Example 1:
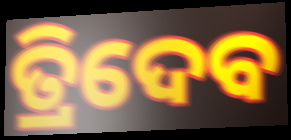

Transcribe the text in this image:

ତ୍ରିଦେବ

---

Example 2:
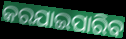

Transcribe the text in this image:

କରଯାଇପାରିବ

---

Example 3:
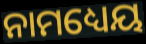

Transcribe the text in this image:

ନାମଧ୍ୟେୟ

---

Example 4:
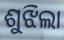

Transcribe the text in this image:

ଶୁଝିଲା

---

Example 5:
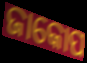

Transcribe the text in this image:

ଜାକୋପ